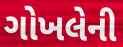
ગોખલેની